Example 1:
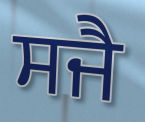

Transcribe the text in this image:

ਸਜੈ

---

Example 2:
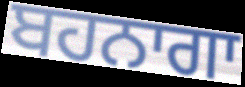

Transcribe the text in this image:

ਬਹਨਾਗਾ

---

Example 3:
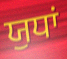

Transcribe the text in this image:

ਯੁਧਾਂ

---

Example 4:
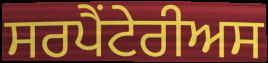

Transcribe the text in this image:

ਸਰਪੈਂਟੇਰੀਅਸ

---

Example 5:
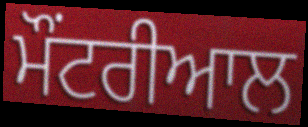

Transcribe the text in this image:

ਮੌਂਟਰੀਆਲ